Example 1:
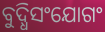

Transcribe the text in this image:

ବୁଦ୍ଧିସଂଯୋଗଂ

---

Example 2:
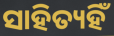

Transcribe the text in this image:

ସାହିତ୍ୟହିଁ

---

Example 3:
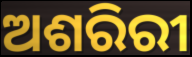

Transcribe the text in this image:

ଅଶରିରୀ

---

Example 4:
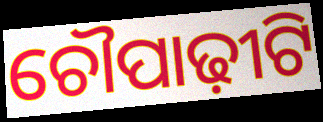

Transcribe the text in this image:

ଚୌପାଢ଼ୀଟି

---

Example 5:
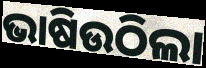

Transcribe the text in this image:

ଭାଷିଉଠିଲା